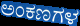
ಅಂಕಣಗಳ